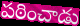
పఠించాడు